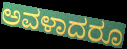
ಅವಳಾದರೂ